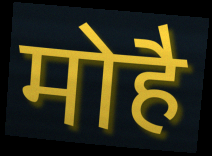
मोहै